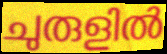
ചുരുളിൽ